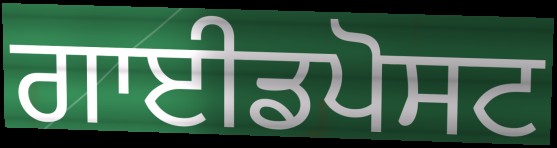
ਗਾਈਡਪੋਸਟ